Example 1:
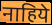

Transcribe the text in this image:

नाहिये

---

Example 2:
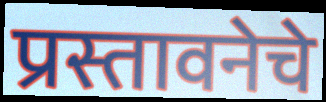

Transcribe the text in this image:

प्रस्तावनेचे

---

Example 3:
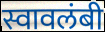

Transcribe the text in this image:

स्वावलंबी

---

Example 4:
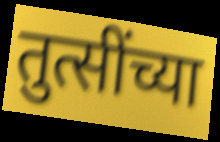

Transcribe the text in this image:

तुत्सींच्या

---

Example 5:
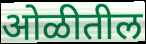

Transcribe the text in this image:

ओळीतील